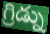
గ్రిడ్ను